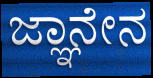
ಜ್ಞಾನೇನ